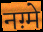
नग़्मे